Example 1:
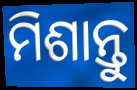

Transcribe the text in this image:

ମିଶାନ୍ତୁ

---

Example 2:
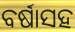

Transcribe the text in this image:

ବର୍ଷାସହ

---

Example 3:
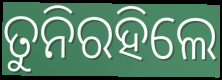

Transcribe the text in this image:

ତୁନିରହିଲେ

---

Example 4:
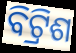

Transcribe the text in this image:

ବିଟ୍ରିଶ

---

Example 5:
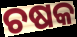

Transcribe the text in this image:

ଚଷକ